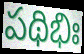
పథిభిః